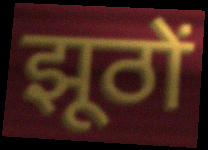
झूठों